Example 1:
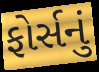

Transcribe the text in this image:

ફોર્સનું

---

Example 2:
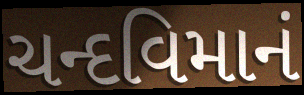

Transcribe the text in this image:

ચન્દવિમાનં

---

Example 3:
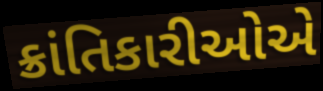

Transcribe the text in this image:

ક્રાંતિકારીઓએ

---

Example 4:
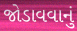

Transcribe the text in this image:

જોડાવવાનું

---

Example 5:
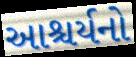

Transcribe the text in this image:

આશ્ચર્યનો